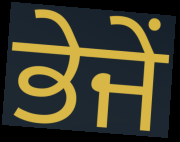
ਭੇਜੇਂ